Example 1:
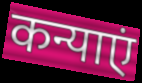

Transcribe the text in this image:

कन्याएं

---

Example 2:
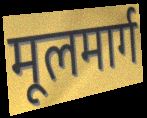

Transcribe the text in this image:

मूलमार्ग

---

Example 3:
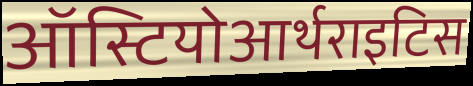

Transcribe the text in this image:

ऑस्टियोआर्थराइटिस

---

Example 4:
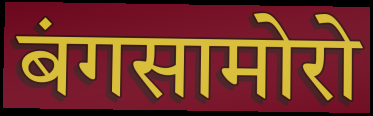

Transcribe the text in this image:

बंगसामोरो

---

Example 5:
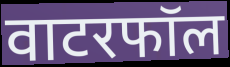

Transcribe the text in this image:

वाटरफॉल